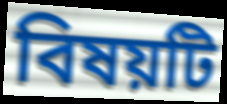
বিষয়টি